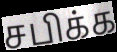
சபிக்க